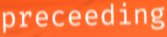
preceeding